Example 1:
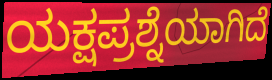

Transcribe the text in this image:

ಯಕ್ಷಪ್ರಶ್ನೆಯಾಗಿದೆ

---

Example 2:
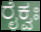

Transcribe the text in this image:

ರೈಕ್ವಃ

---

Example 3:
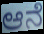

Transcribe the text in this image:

ಆನೆ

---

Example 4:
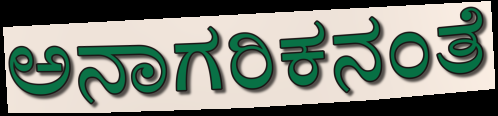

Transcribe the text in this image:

ಅನಾಗರಿಕನಂತೆ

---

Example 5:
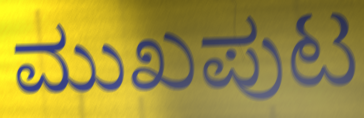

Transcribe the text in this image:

ಮುಖಪುಟ